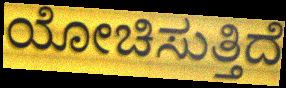
ಯೋಚಿಸುತ್ತಿದೆ